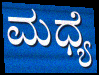
ಮಧ್ಯೆ